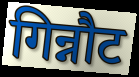
गिन्नौट